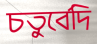
চতুর্বেদি